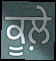
ਕੂਲ਼ੇ